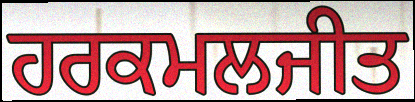
ਹਰਕਮਲਜੀਤ